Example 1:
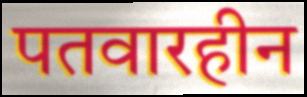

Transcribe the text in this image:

पतवारहीन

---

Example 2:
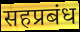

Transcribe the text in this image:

सहप्रबंध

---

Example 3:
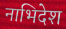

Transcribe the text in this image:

नाभिदेश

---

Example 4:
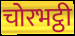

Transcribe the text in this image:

चोरभट्ठी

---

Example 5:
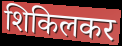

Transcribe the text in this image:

शिकिलकर